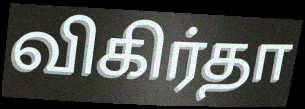
விகிர்தா